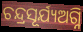
ଚନ୍ଦ୍ରସୂର୍ଯ୍ୟଅଗ୍ନି